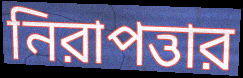
নিরাপত্তার